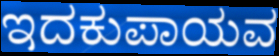
ಇದಕುಪಾಯವ